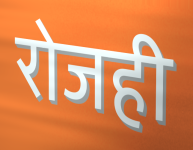
रोजही